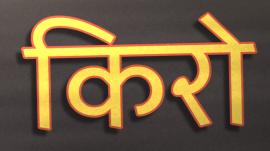
किरो